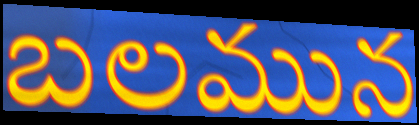
బలమున